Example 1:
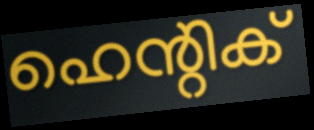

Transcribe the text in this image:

ഹെന്റിക്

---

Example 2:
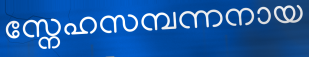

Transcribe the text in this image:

സ്നേഹസമ്പന്നനായ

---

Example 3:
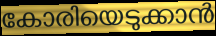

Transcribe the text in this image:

കോരിയെടുക്കാൻ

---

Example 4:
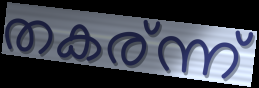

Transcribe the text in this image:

തകര്ന്ന്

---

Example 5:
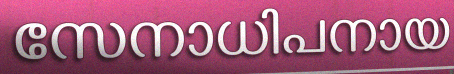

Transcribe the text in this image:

സേനാധിപനായ